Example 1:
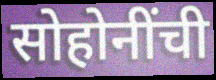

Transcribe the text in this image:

सोहोनींची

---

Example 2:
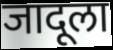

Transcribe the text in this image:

जादूला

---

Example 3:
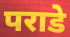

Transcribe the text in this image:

पराडे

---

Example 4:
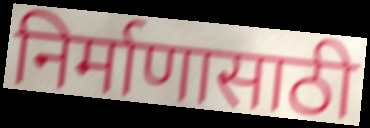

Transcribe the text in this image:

निर्माणासाठी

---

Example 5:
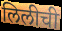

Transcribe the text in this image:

लिलीची